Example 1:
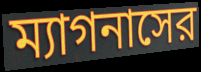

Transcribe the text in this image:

ম্যাগনাসের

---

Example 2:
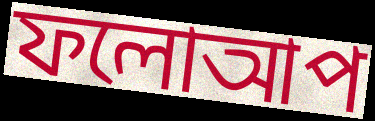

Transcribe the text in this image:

ফলোআপ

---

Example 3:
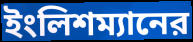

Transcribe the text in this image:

ইংলিশম্যানের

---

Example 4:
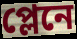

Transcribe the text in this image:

প্লেনে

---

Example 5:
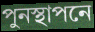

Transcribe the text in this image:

পুনস্থাপনে